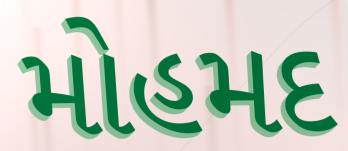
મોહમદ